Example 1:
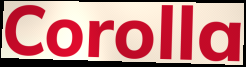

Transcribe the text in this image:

Corolla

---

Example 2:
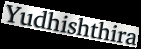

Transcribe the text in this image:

Yudhishthira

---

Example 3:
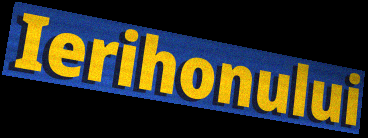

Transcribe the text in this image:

Ierihonului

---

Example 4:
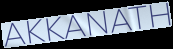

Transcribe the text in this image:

AKKANATH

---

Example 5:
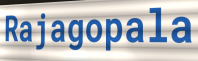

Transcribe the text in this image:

Rajagopala